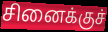
சினைக்குச்